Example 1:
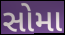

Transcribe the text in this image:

સોમા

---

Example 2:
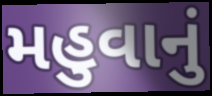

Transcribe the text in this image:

મહુવાનું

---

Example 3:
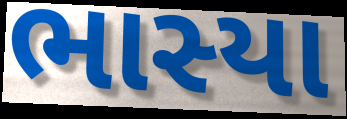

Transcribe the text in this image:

ભાસ્યા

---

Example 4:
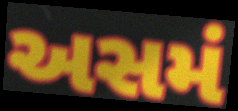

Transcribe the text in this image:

અસમં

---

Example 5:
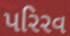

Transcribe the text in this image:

પરિરવ